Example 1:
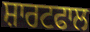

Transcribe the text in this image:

ਸ਼ਾਰਟਫਾਲ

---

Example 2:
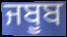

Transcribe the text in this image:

ਜਬੂਬ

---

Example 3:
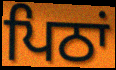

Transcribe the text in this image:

ਪਿਠਾਂ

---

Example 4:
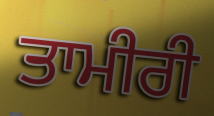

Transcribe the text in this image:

ਤਾਮੀਰੀ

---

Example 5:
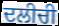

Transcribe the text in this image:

ਦਲੀਚੀ